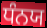
ਧੰਨਯ